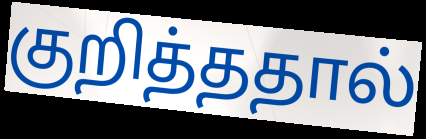
குறித்ததால்